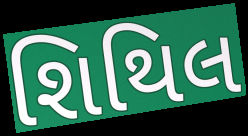
શિથિલ